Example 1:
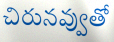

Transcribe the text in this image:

చిరునవ్వుతో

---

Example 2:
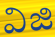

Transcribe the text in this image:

విజి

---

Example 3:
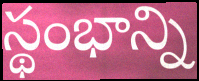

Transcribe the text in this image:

స్థంభాన్ని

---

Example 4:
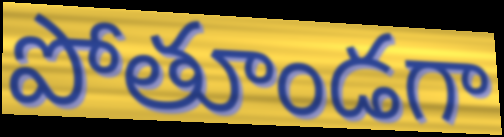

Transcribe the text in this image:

పోతూండగా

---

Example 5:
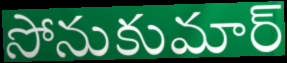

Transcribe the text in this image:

సోనుకుమార్